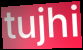
tujhi